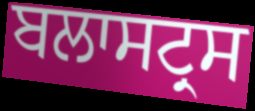
ਬਲਾਸਟ੍ਰਸ